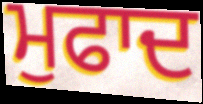
ਮੁਫਾਦ